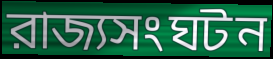
রাজ্যসংঘটন